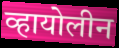
व्हायोलीन